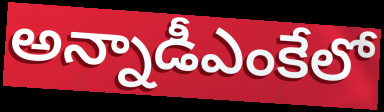
అన్నాడీఎంకేలో